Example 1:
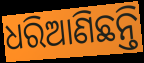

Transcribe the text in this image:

ଧରିଆଣିଛନ୍ତି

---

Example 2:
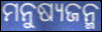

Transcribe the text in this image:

ମନୁଷ୍ୟଜନ୍ମ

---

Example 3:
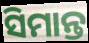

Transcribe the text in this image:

ସିମାନ୍ତ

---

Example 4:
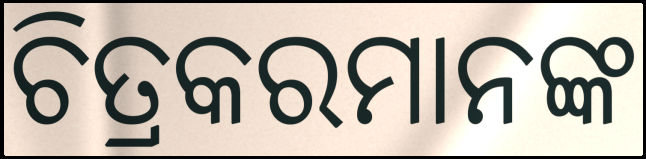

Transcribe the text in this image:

ଚିତ୍ରକରମାନଙ୍କ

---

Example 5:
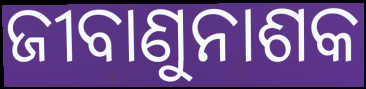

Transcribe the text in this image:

ଜୀବାଣୁନାଶକ